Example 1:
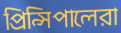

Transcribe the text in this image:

প্রিন্সিপালেরা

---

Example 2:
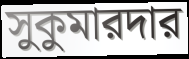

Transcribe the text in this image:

সুকুমারদার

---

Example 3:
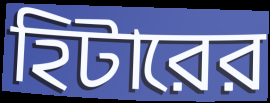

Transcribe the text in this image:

হিটারের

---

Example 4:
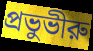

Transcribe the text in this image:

প্রভুভীরু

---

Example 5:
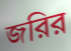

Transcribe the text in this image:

জরির